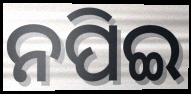
ନପିଇ